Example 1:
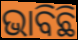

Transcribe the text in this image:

ଭାବିଛି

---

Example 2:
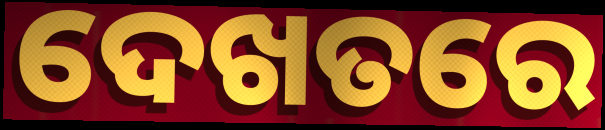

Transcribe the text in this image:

ଦେଖତରେ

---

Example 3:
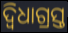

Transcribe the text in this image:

ଦ୍ୱିଧାଗ୍ରସ୍ତ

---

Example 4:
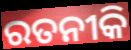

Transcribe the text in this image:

ରତନୀକି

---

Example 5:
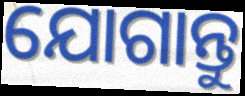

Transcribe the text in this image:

ଯୋଗାନ୍ତୁ